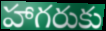
హాగరుకు